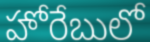
హోరేబులో